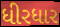
ધીરધાર